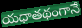
యధాతథంగానే